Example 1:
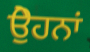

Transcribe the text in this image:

ਉੇਹਨਾਂ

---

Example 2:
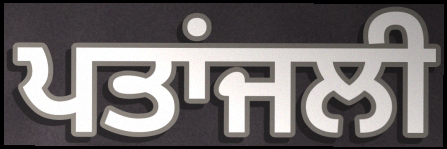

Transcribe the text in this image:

ਪਤਾਂਜਲੀ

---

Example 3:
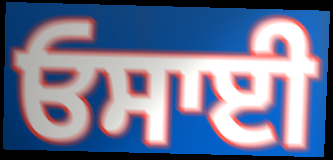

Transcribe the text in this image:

ਓਸਾਈ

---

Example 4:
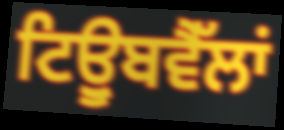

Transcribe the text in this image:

ਟਿਊੁਬਵੈੱਲਾਂ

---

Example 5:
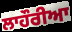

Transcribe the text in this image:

ਲਾਹੌਰੀਆ